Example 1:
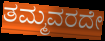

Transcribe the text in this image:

ತಮ್ಮವರದೇ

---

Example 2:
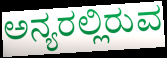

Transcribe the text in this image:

ಅನ್ಯರಲ್ಲಿರುವ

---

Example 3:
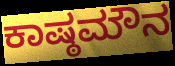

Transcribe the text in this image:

ಕಾಷ್ಠಮೌನ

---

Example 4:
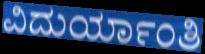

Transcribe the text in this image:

ವಿದುರ್ಯಾಂತಿ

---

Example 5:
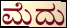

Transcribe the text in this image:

ಮೆದು